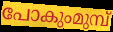
പോകുംമുമ്പ്